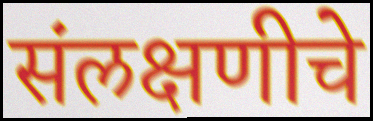
संलक्षणीचे